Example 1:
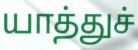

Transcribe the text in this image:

யாத்துச்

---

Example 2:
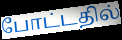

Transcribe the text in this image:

போட்டதில்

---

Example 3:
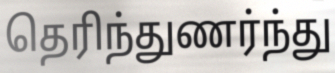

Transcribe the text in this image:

தெரிந்துணர்ந்து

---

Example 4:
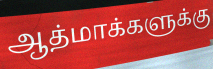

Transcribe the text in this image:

ஆத்மாக்களுக்கு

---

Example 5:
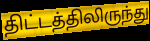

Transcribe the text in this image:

திட்டத்திலிருந்து